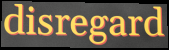
disregard